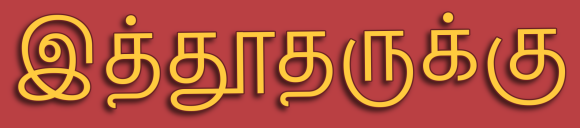
இத்தூதருக்கு